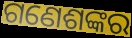
ଗଣେଶଙ୍କର